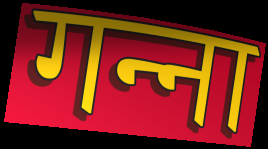
गन्‍ना